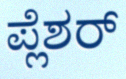
ಪ್ಲೆಶರ್